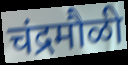
चंद्रमौळी